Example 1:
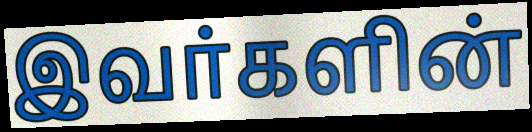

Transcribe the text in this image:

இவர்களின்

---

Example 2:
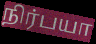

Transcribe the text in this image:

நிர்பயா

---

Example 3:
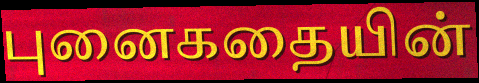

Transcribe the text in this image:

புனைகதையின்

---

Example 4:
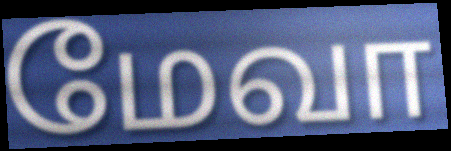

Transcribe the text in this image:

மேவா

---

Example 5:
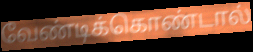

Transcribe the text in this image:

வேண்டிக்கொண்டால்